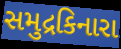
સમુદ્રકિનારા